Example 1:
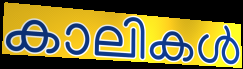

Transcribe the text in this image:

കാലികൾ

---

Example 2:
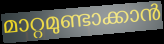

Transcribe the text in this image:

മാറ്റമുണ്ടാക്കാൻ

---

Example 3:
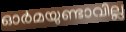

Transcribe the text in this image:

ഓർമയുണ്ടാവില്ല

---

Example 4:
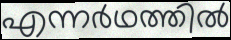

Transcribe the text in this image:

എന്നർഥത്തിൽ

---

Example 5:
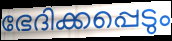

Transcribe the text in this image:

ഭേദിക്കപ്പെടും